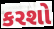
કરશો